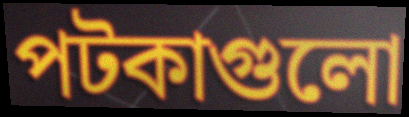
পটকাগুলো